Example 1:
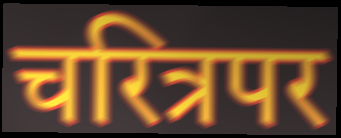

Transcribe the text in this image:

चरित्रपर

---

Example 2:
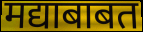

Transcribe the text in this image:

मद्याबाबत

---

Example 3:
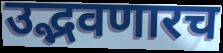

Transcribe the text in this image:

उद्भवणारच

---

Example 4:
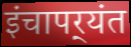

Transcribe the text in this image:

इंचापर्यंत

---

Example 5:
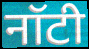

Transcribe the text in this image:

नॉटी